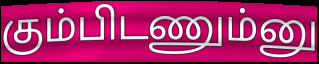
கும்பிடணும்னு